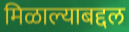
मिळाल्याबद्दल